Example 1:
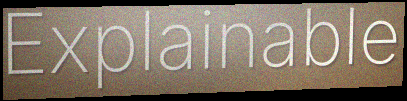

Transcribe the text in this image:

Explainable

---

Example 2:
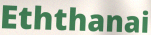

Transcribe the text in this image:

Eththanai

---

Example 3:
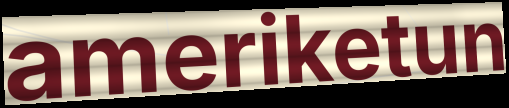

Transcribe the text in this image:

ameriketun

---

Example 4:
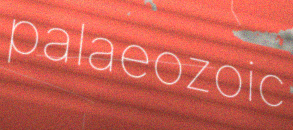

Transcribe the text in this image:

palaeozoic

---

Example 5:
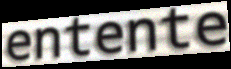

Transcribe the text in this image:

entente